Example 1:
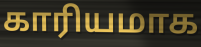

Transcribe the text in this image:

காரியமாக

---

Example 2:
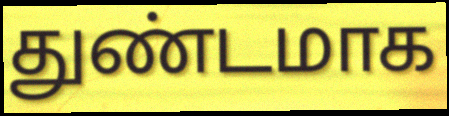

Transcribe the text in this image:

துண்டமாக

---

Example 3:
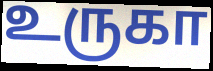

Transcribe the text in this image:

உருகா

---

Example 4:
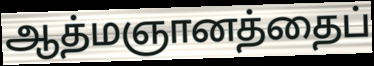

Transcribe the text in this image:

ஆத்மஞானத்தைப்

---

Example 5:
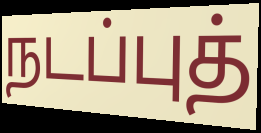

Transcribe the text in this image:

நடப்புத்